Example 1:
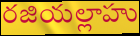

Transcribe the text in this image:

రజియల్లాహు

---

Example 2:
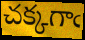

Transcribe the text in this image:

చక్కగాఁ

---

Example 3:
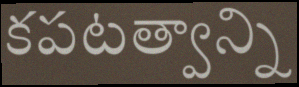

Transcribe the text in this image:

కపటత్వాన్ని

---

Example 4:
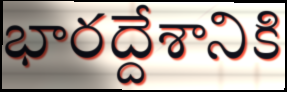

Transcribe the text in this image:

భారద్దేశానికి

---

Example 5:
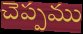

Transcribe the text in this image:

చెప్పము